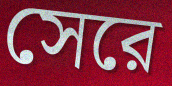
সেরে